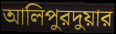
আলিপুরদুয়ার